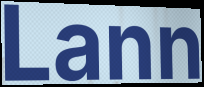
Lann